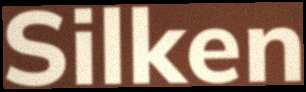
Silken